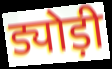
ड्योड़ी